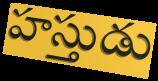
హస్తుడు